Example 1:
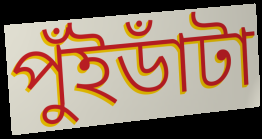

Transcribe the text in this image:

পুঁইডাঁটা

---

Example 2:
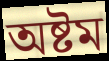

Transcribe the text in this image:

অষ্টম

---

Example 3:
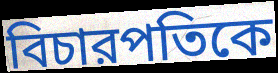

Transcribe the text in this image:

বিচারপতিকে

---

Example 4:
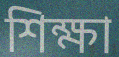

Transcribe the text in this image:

শিক্ষা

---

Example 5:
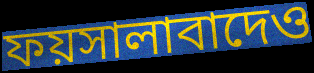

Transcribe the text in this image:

ফয়সালাবাদেও